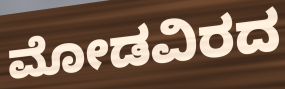
ಮೋಡವಿರದ